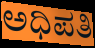
ಅಧಿಪತಿ